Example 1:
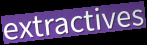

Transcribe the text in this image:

extractives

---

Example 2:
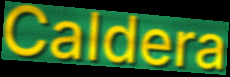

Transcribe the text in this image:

Caldera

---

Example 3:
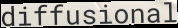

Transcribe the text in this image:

diffusional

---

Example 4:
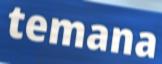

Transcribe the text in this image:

temana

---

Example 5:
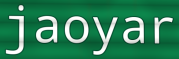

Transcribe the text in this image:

jaoyar